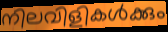
നിലവിളികൾക്കും